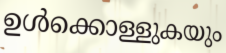
ഉൾക്കൊള്ളുകയും